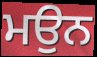
ਮਉਨ